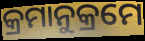
କ୍ରମାନୁକ୍ରମେ